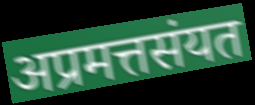
अप्रमत्तसंयत